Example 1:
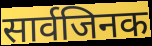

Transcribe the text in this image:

सार्वजिनक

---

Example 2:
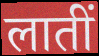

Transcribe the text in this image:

लातीं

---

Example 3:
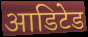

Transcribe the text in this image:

आडिटेड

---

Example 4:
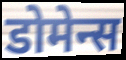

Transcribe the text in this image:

डोमेन्स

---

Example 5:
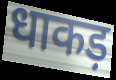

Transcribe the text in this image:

धाकड़